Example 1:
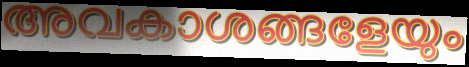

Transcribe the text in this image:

അവകാശങ്ങളേയും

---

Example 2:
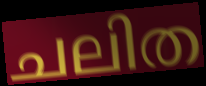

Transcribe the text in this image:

ചലിത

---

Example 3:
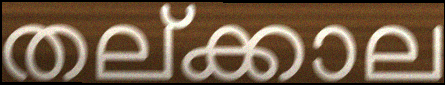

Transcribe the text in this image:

തല്ക്കാല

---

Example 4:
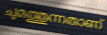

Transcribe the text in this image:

ചുമത്തുന്നതാണ്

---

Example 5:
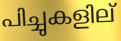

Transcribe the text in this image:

പിച്ചുകളില്